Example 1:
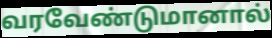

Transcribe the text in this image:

வரவேண்டுமானால்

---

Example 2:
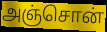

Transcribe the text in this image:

அஞ்சொன்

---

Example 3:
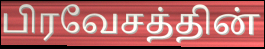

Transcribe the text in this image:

பிரவேசத்தின்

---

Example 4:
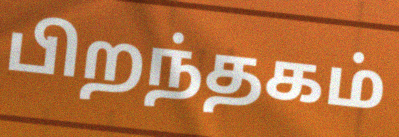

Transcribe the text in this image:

பிறந்தகம்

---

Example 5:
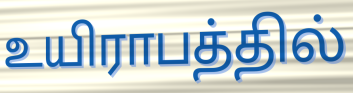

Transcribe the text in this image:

உயிராபத்தில்